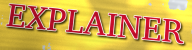
EXPLAINER